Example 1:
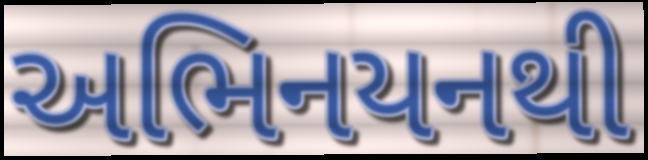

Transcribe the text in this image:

અભિનયનથી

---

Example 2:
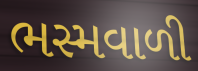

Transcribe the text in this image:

ભસ્મવાળી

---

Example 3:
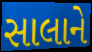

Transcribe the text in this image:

સાલાને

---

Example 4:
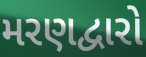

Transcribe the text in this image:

મરણદ્વારો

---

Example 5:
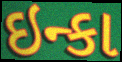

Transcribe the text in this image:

ઇન્કા